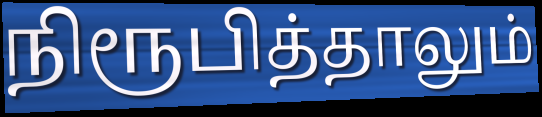
நிரூபித்தாலும்